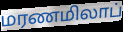
மரணமிலாப்